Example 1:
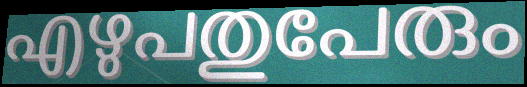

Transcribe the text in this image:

എഴുപതുപേരും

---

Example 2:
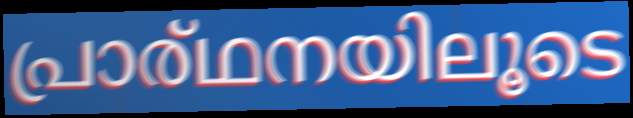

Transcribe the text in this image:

പ്രാര്ഥനയിലൂടെ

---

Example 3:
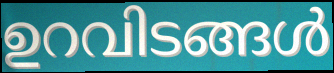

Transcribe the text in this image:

ഉറവിടങ്ങൾ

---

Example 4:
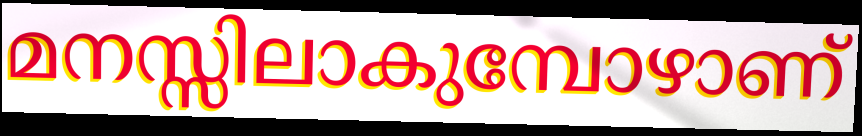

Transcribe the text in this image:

മനസ്സിലാകുമ്പോഴാണ്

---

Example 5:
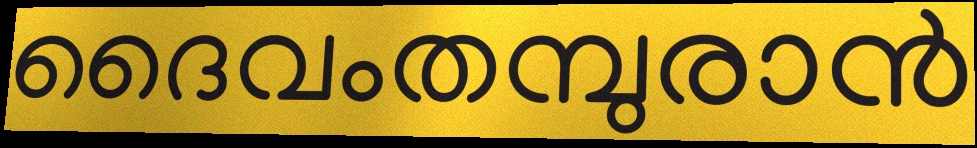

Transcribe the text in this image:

ദൈവംതമ്പുരാൻ